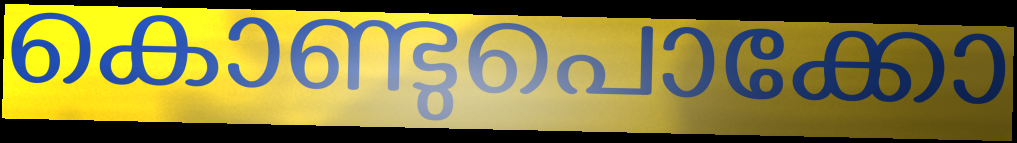
കൊണ്ടുപൊക്കോ